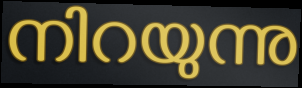
നിറയുന്നു